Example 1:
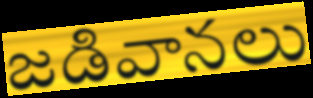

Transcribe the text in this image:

జడివానలు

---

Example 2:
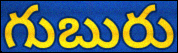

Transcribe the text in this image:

గుబురు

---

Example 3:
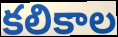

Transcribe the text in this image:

కలికాల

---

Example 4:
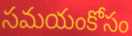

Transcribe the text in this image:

సమయంకోసం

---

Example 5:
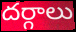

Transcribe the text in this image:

దర్గాలు